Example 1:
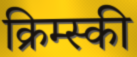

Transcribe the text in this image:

क्रिम्स्की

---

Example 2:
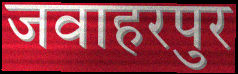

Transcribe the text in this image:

जवाहरपुर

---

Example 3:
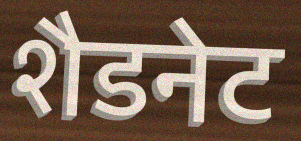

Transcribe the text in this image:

शैडनेट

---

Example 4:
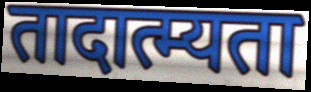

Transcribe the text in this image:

तादात्म्यता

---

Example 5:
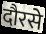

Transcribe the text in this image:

दौरसे